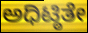
ಅಧಿಟ್ಠಿತೇ